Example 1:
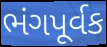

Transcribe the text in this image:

ભંગપૂર્વક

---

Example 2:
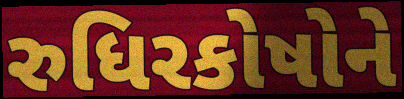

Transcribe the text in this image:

રુધિરકોષોને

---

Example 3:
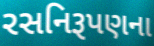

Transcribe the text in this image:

રસનિરૂપણના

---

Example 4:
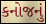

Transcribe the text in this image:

કનોજનું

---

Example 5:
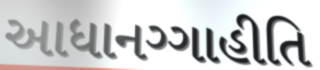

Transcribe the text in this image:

આધાનગ્ગાહીતિ